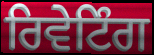
ਰਿਵੇਟਿੰਗ